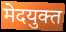
मेदयुक्त